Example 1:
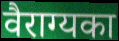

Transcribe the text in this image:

वैराग्यका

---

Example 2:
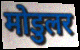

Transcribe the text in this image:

मोडुलर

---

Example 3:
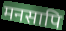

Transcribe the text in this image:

मनसापि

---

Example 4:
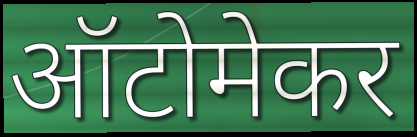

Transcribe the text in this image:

ऑटोमेकर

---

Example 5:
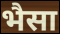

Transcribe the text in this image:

भैसा